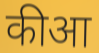
कीआ